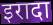
इरादा